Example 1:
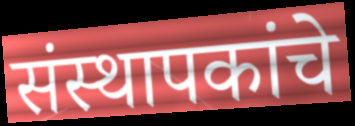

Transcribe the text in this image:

संस्थापकांचे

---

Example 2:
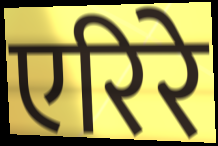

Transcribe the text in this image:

एरिरे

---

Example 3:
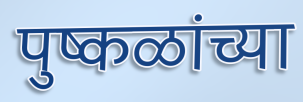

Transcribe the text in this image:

पुष्कळांच्या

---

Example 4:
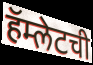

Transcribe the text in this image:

हॅम्लेटची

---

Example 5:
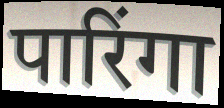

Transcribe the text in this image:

पारिंगा